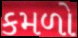
કમળો